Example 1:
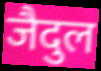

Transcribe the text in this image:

जैदुल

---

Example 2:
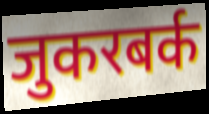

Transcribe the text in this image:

जुकरबर्क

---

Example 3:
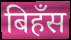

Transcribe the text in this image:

बिहँस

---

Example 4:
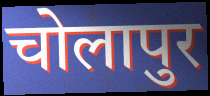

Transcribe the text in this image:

चोलापुर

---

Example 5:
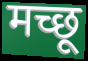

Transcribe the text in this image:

मच्छू